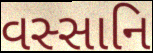
વસ્સાનિ